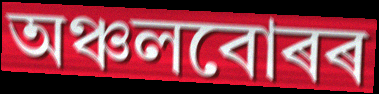
অঞ্চলবোৰৰ